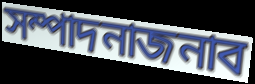
সম্পাদনাজনাব